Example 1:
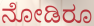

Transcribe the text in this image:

ನೋಡಿರೂ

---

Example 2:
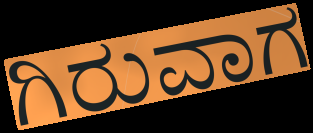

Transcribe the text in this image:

ಗಿರುವಾಗ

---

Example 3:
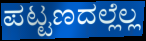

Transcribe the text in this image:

ಪಟ್ಟಣದಲ್ಲೆಲ್ಲ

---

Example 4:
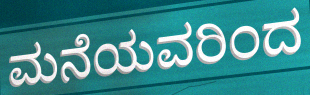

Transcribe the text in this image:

ಮನೆಯವರಿಂದ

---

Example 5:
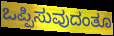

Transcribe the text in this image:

ಒಪ್ಪಿಸುವುದಂತೂ